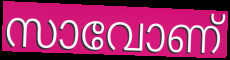
സാവോണ്